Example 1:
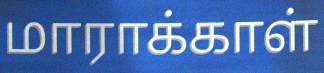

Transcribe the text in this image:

மாராக்காள்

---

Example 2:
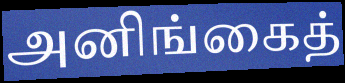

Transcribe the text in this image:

அனிங்கைத்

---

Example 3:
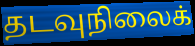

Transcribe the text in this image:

தடவுநிலைக்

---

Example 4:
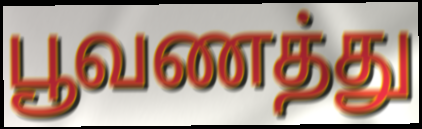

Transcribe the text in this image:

பூவணத்து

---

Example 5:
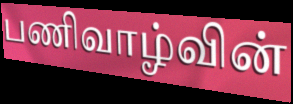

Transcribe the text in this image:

பணிவாழ்வின்